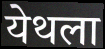
येथला